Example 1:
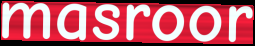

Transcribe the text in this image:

masroor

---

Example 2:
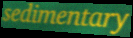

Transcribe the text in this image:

sedimentary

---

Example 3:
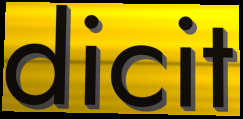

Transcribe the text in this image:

dicit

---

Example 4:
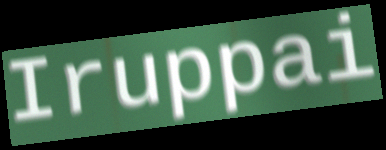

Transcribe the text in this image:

Iruppai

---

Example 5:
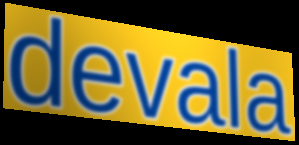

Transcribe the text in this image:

devala